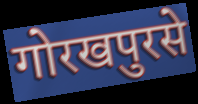
गोरखपुरसे